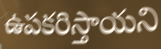
ఉపకరిస్తాయని